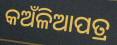
କଅଁଳିଆପତ୍ର